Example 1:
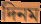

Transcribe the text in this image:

দিনম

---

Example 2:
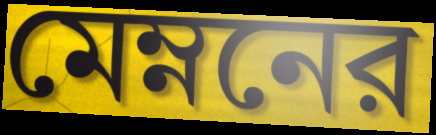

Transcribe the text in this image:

মেম্ননের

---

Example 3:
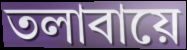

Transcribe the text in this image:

তলাবায়ে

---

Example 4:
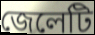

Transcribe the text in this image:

জেলেটি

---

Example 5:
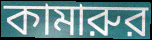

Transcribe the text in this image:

কামারুর